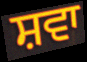
ਸ਼ਵਾ